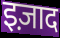
इज़ाद